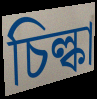
চিল্কা